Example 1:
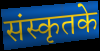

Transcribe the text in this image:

संस्कृतके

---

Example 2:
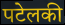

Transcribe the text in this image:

पटेलकी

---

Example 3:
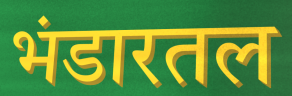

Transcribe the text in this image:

भंडारतल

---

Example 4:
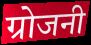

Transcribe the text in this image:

ग्रोजनी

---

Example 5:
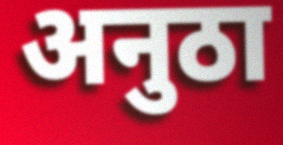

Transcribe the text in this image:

अनुठा